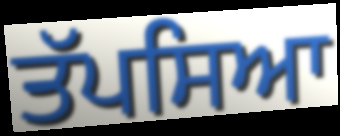
ਤੱਪਸਿਆ